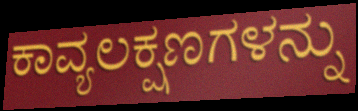
ಕಾವ್ಯಲಕ್ಷಣಗಳನ್ನು